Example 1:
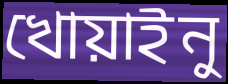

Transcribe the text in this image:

খোয়াইনু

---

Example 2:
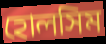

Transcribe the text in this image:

হোলসিম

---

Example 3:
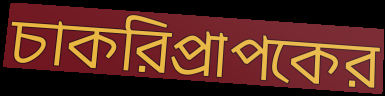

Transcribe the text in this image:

চাকরিপ্রাপকের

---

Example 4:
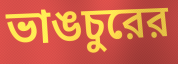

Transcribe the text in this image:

ভাঙচুরের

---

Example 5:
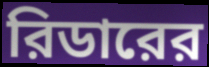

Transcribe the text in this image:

রিডারের